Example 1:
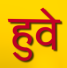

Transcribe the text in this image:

हुवे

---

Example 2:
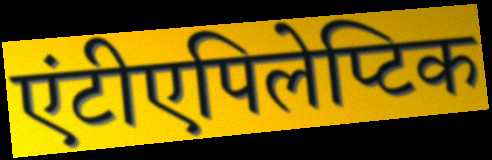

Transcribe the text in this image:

एंटीएपिलेप्टिक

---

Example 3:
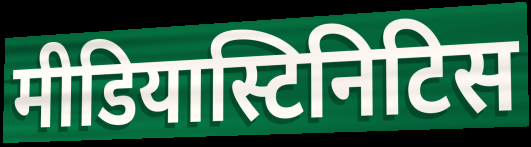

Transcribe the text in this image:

मीडियास्टिनिटिस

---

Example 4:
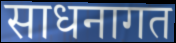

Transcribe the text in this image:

साधनागत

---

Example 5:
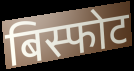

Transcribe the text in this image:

बिस्फोट